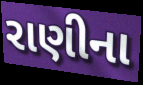
રાણીના